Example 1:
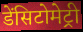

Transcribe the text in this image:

डेंसिटोमेट्री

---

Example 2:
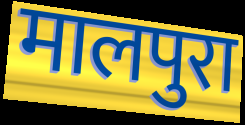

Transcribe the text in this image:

मालपुरा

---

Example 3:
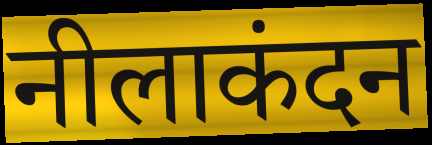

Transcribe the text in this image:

नीलाकंदन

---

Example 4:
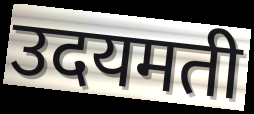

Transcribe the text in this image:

उदयमती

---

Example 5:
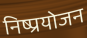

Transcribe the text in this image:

निष्प्रयोजन